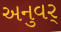
અનુવર્